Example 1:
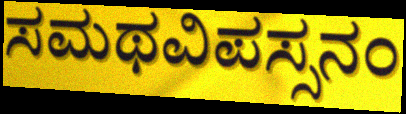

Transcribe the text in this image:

ಸಮಥವಿಪಸ್ಸನಂ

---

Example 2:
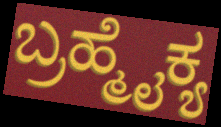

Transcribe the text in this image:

ಬ್ರಹ್ಮೈಕ್ಯ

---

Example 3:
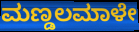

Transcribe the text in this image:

ಮಣ್ಡಲಮಾಳೇ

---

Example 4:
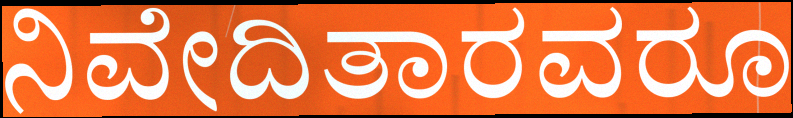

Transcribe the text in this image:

ನಿವೇದಿತಾರವರೂ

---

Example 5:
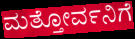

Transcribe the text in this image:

ಮತ್ತೋರ್ವನಿಗೆ